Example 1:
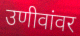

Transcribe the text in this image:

उणीवांवर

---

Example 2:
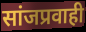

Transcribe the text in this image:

सांजप्रवाही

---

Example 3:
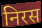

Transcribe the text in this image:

निरस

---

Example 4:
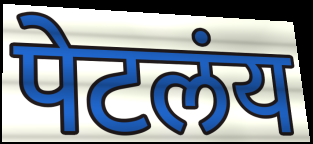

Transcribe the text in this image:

पेटलंय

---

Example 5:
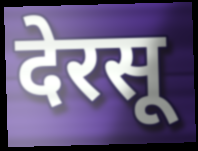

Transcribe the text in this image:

देरसू